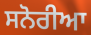
ਸਨੋਰੀਆ